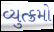
વ્યુત્ક્રમો